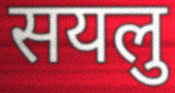
सयलु